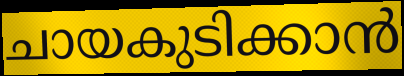
ചായകുടിക്കാൻ